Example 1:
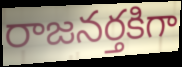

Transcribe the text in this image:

రాజనర్తకిగా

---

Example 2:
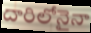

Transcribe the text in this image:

దారిలోనైనా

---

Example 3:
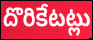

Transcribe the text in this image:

దొరికేటట్లు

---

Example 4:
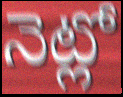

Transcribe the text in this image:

నెట్లో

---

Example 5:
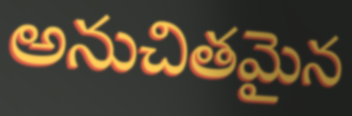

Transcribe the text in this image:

అనుచితమైన